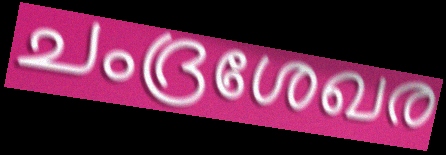
ചംദ്രശേഖര